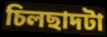
চিলছাদটা